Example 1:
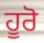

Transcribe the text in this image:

ਹੂਰੋ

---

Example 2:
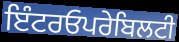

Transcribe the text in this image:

ਇੰਟਰਓਪਰੇਬਿਲਟੀ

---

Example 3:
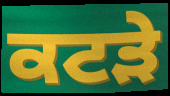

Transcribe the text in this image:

ਕਟੜੇ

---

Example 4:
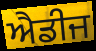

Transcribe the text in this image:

ਐਡੀਜ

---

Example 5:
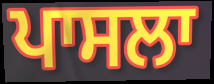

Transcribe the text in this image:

ਪਾਸਲਾ